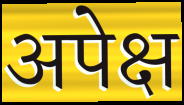
अपेक्ष